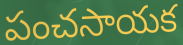
పంచసాయక